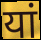
यां